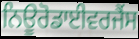
ਨਿਊਰੋਡਾਈਵਰਜੈਂਸ